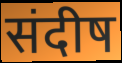
संदीष